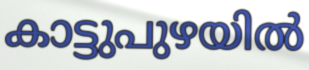
കാട്ടുപുഴയിൽ